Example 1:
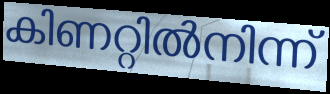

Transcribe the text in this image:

കിണറ്റിൽനിന്ന്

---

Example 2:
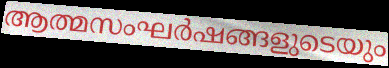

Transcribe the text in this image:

ആത്മസംഘർഷങ്ങളുടെയും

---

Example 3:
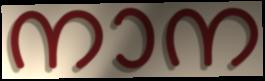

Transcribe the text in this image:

നാന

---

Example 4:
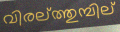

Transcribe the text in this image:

വിരല്ത്തുമ്പില്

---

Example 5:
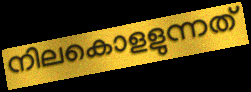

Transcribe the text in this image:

നിലകൊളളുന്നത്